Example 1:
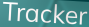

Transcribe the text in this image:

Tracker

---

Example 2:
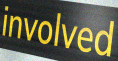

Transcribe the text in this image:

involved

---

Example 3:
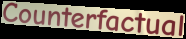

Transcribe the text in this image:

Counterfactual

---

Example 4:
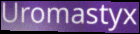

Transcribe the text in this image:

Uromastyx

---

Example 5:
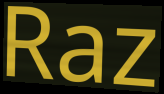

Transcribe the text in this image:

Raz